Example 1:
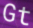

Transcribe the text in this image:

Gt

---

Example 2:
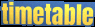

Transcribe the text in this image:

timetable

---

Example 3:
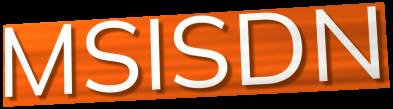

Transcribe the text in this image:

MSISDN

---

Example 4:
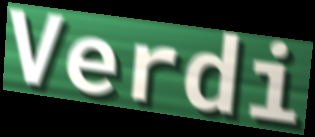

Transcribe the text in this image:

Verdi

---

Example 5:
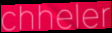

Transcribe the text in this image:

chheler